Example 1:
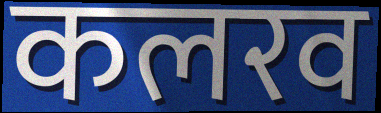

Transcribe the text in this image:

कलरव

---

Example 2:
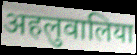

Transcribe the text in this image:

अहलुवालिया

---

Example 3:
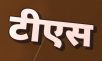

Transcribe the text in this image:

टीएस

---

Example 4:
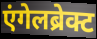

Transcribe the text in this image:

एंगेलब्रेक्ट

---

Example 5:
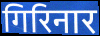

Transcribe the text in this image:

गिरिनार